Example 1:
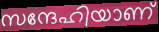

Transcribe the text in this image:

സന്ദേഹിയാണ്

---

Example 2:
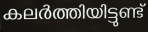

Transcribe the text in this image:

കലർത്തിയിട്ടുണ്ട്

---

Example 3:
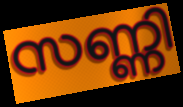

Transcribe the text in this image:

സണ്ണി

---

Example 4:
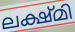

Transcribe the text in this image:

ലക്ഷ്മി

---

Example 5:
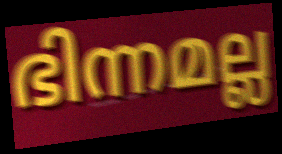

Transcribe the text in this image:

ഭിന്നമല്ല